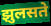
झुलसते